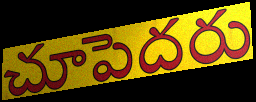
చూపెదరు